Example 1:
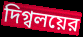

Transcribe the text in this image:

দিগ্বলয়ের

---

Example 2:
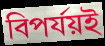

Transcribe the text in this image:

বিপর্যয়ই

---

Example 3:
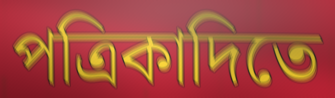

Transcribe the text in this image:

পত্রিকাদিতে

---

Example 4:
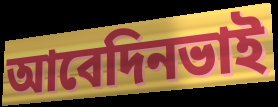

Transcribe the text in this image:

আবেদিনভাই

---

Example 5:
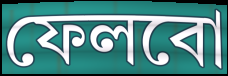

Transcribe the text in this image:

ফেলবো